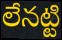
లేనట్టి